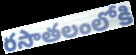
రసాతలంలోకి